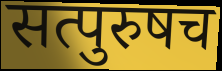
सत्पुरुषच